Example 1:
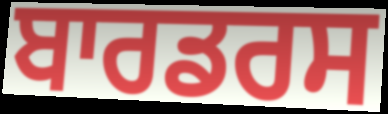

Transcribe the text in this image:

ਬਾਰਡਰਸ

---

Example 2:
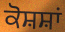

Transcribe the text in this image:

ਕੋਸ਼ਸ਼ਾਂ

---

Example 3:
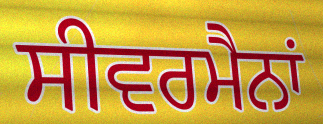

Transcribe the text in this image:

ਸੀਵਰਮੈਨਾਂ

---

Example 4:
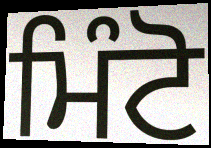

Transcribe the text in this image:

ਮਿੰਟੋ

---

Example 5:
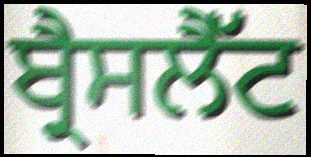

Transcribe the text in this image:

ਬ੍ਰੈਸਲੈੱਟ